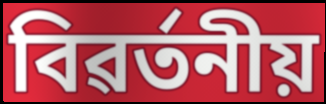
বিৱৰ্তনীয়